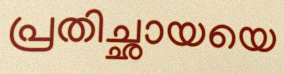
പ്രതിച്ഛായയെ